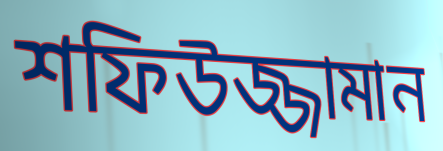
শফিউজ্জামান